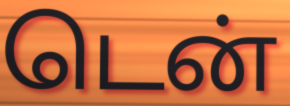
டென்